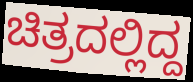
ಚಿತ್ರದಲ್ಲಿದ್ದ